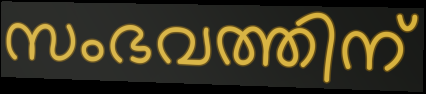
സംഭവത്തിന്